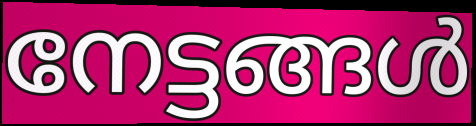
നേട്ടങ്ങൾ